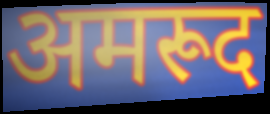
अमरूद